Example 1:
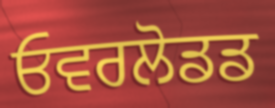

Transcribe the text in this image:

ਓਵਰਲੋਡਡ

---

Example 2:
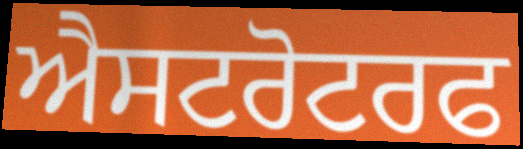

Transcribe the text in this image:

ਐਸਟਰੋਟਰਫ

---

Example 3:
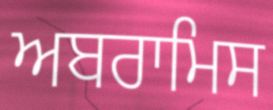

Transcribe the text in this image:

ਅਬਰਾਮਿਸ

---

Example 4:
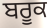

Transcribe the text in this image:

ਬਰੂਕ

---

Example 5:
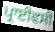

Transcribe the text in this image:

ਪ੍ਰਾਈਵਸੀ